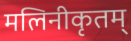
मलिनीकृतम्